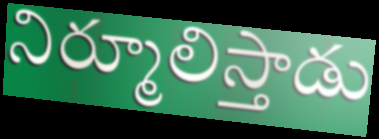
నిర్మూలిస్తాడు